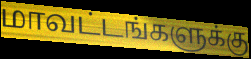
மாவட்டங்களுக்கு